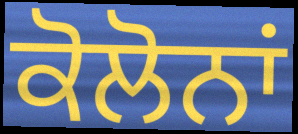
ਕੋਲੋਨਾਂ